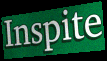
Inspite